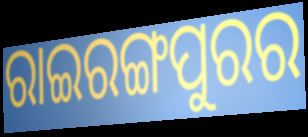
ରାଇରଙ୍ଗପୁରର